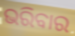
ଭରିବାର